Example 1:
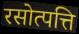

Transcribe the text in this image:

रसोत्पत्ति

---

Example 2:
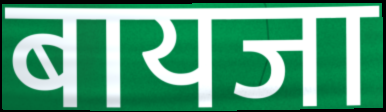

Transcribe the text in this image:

बायजा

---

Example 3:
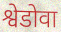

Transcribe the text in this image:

श्वेडोवा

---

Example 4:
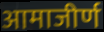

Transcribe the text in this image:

आमाजीर्ण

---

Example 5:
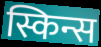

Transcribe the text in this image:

स्किन्स